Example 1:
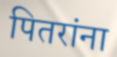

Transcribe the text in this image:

पितरांना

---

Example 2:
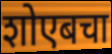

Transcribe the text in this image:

शोएबचा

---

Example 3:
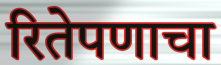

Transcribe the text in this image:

रितेपणाचा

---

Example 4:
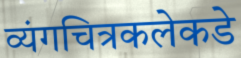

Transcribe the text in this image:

व्यंगचित्रकलेकडे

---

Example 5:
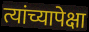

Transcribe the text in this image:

त्यांच्यापेक्षा